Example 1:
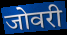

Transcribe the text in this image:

जोवरी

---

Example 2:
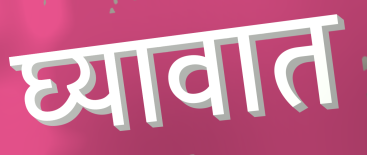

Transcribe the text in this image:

घ्यावात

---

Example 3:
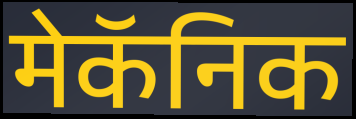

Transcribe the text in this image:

मेकॅनिक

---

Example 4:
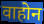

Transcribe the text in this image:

वाहोन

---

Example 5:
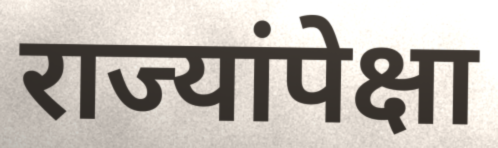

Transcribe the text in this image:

राज्यांपेक्षा